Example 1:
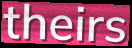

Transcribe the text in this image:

theirs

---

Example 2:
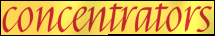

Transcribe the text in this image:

concentrators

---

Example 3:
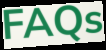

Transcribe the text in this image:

FAQs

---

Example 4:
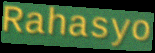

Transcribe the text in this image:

Rahasyo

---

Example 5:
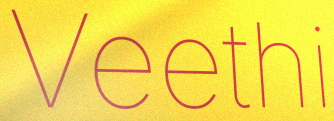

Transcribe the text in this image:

Veethi